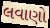
લવાણો